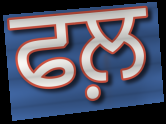
ਫਲ਼